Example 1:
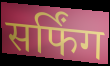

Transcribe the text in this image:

सर्फिंग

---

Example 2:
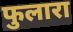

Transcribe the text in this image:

फुलारा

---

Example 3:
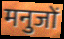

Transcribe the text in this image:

मनुजों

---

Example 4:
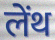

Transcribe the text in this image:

लेंथ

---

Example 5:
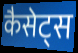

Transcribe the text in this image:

कैसेट्स